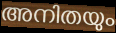
അനിതയും